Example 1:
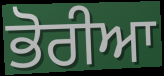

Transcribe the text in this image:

ਭੋਰੀਆ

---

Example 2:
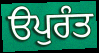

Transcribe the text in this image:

ੳਪੁਰੰਤ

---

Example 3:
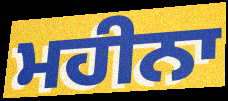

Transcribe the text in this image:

ਮਹੀਨਾ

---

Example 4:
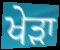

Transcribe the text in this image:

ਖੇੜਾ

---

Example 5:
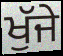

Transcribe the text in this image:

ਖੁੱਜੇ